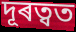
দূৰত্বত